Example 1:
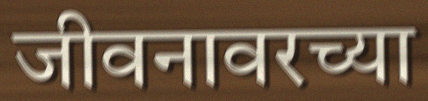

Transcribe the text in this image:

जीवनावरच्या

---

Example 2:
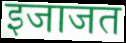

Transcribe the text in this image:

इजाजत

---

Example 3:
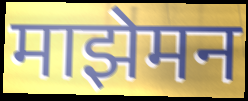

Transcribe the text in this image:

माझेमन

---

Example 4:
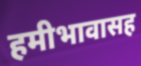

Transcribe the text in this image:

हमीभावासह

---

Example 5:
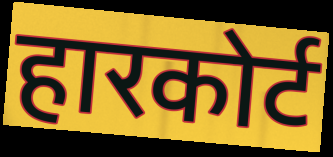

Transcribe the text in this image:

हारकोर्ट